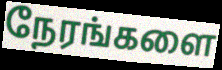
நேரங்களை